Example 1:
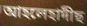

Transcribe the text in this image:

আহলেহাদীছ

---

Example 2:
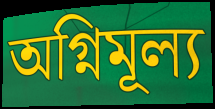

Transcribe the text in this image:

অগ্নিমূল্য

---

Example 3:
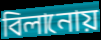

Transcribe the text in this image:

বিলানোয়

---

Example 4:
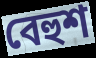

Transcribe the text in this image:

বেহুশ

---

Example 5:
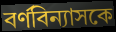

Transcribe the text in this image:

বর্ণবিন্যাসকে